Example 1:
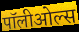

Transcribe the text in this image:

पॉलीओल्स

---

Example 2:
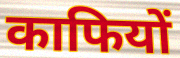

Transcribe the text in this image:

काफियों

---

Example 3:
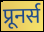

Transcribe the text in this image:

प्रूनर्स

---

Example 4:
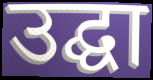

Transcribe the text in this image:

उद्घा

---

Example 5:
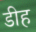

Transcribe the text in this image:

डीह